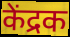
केंद्रक